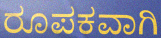
ರೂಪಕವಾಗಿ